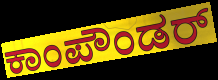
ಕಾಂಪೌಂಡರ್